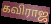
கவிராஜ